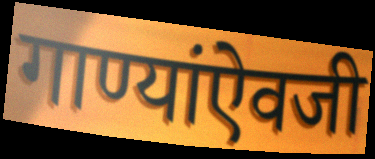
गाण्यांऐवजी